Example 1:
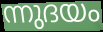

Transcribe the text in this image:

ന്നുദയം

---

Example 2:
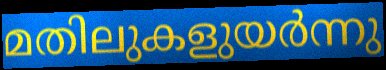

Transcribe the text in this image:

മതിലുകളുയർന്നു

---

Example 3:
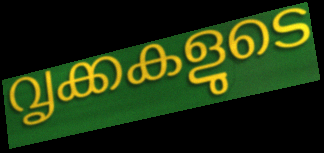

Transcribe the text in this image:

വൃക്കകളുടെ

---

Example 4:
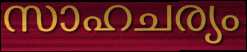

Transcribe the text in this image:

സാഹചര്യം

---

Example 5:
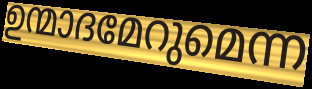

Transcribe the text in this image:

ഉന്മാദമേറുമെന്ന